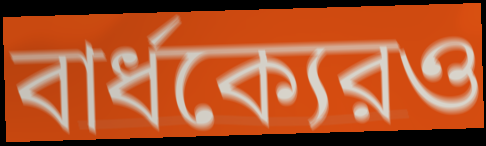
বার্ধক্যেরও